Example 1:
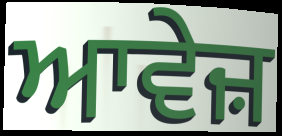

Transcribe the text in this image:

ਆਵੇਜ਼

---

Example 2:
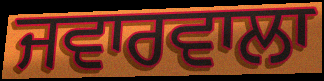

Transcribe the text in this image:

ਜਵਾਰਵਾਲਾ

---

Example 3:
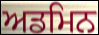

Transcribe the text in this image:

ਅਡਮਿਨ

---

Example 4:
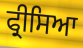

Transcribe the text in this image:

ਫ੍ਰੀਸਿਆ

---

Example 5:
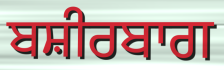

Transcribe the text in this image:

ਬਸ਼ੀਰਬਾਗ